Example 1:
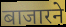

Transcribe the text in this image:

बाजारने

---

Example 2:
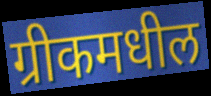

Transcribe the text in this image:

ग्रीकमधील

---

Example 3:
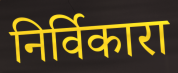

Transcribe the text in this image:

निर्विकारा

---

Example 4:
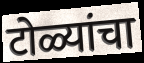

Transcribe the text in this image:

टोळ्यांचा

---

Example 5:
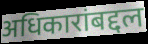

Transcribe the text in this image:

अधिकारांबद्दल